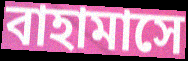
বাহামাসে